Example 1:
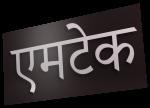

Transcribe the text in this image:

एमटेक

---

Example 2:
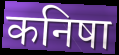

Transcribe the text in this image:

कनिषा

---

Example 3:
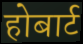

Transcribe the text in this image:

होबार्ट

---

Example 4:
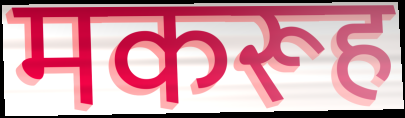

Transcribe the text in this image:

मकरूह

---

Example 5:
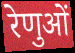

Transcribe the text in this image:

रेणुओं